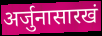
अर्जुनासारखं